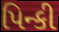
પિન્કી